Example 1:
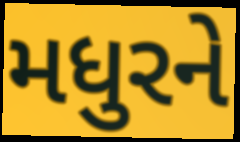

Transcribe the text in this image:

મધુરને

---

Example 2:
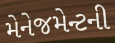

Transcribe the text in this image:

મેનેજમેન્ટની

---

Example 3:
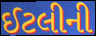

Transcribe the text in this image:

ઈટલીની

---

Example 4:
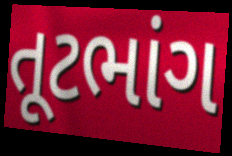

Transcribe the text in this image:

તૂટભાંગ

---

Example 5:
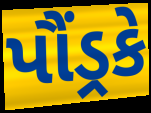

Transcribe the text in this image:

પૌંડ્રકે